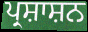
ਪ੍ਰਸ਼ਾਸ਼ਨ